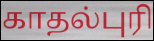
காதல்புரி